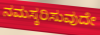
ನಮಸ್ಕರಿಸುವುದೇ